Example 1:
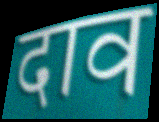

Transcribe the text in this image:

दाव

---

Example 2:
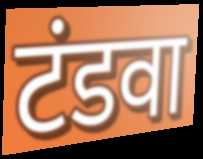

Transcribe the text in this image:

टंडवा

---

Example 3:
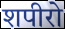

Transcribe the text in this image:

शपीरो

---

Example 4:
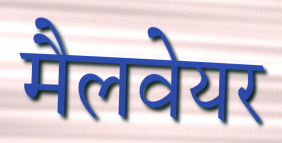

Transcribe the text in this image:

मैलवेयर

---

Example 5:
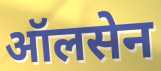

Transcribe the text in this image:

ऑलसेन